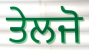
ਤੇਲਜੋ